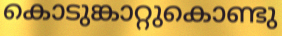
കൊടുങ്കാറ്റുകൊണ്ടു